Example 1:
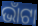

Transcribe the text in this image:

ଭାଁଟା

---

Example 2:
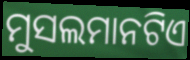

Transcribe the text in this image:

ମୁସଲମାନଟିଏ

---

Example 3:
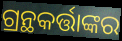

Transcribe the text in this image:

ଗ୍ରନ୍ଥକର୍ତ୍ତାଙ୍କର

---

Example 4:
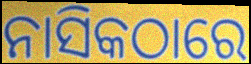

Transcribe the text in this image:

ନାସିକଠାରେ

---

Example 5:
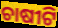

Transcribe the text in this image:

ଚାଷୀଟି